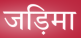
जड़िमा